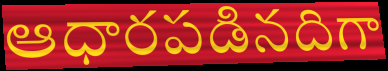
ఆధారపడినదిగా